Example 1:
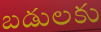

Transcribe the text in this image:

బడులకు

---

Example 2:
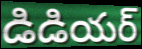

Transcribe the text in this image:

డిడియర్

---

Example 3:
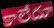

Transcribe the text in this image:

కాలేదూ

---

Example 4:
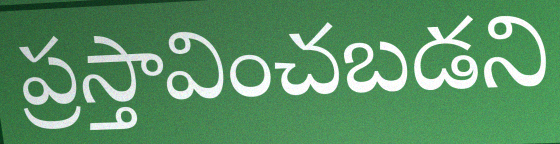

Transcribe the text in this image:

ప్రస్తావించబడని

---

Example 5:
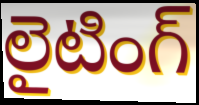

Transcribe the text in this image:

లైటింగ్